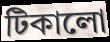
টিকালো